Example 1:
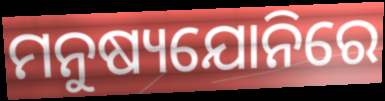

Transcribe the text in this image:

ମନୁଷ୍ୟଯୋନିରେ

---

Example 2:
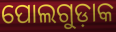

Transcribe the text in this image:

ପୋଲଗୁଡ଼ାକ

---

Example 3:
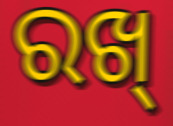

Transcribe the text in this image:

ରଖ୍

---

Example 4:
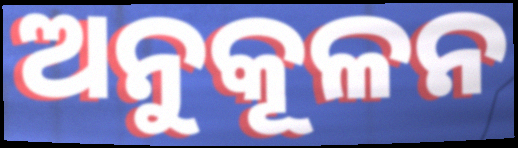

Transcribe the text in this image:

ଅନୁକୂଳନ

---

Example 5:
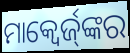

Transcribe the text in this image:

ମାକ୍ୱେର୍ଜ୍‌ଙ୍କର